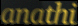
anathi